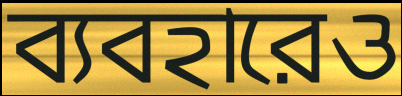
ব্যবহারেও